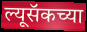
ल्यूसॅकच्या